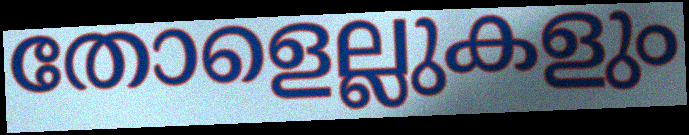
തോളെല്ലുകളും